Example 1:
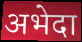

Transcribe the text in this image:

अभेदा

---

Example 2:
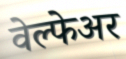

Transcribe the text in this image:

वेल्फेअर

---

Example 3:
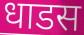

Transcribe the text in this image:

धाडस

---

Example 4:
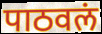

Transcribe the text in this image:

पाठवलं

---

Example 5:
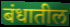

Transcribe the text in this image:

बंधातील